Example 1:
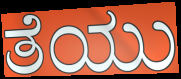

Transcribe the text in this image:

ತೆಯು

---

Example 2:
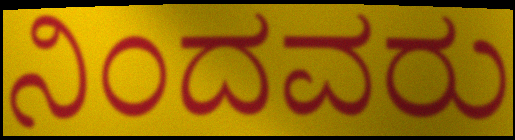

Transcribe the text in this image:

ನಿಂದವರು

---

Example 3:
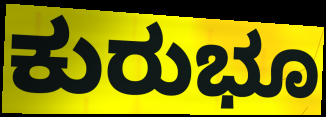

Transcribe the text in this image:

ಕುರುಭೂ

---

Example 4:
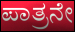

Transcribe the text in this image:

ಪಾತ್ರನೇ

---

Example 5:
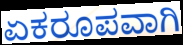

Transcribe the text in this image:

ಏಕರೂಪವಾಗಿ